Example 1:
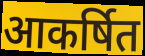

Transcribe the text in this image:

आकर्षित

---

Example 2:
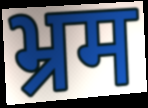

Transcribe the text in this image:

भ्रम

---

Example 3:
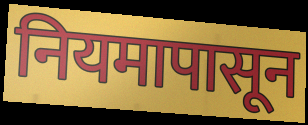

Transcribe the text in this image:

नियमापासून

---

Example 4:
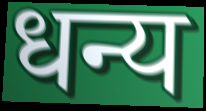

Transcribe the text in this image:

धन्य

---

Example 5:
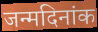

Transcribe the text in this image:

जन्मदिनांक